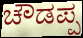
ಚೌಡಪ್ಪ